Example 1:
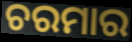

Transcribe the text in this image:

ଚରମାର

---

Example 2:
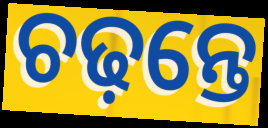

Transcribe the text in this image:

ଚଢ଼ନ୍ତେ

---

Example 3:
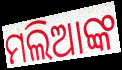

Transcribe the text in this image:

ମଲିଆଙ୍କ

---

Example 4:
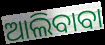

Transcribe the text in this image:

ଆଲିବାବା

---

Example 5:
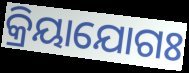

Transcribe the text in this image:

କ୍ରିୟାଯୋଗଃ